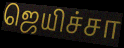
ஜெயிச்சா